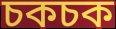
চকচক